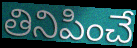
తినిపించే